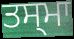
ਤਸ੍ਮਾ